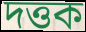
দত্তক